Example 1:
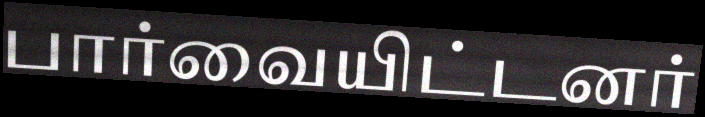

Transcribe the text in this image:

பார்வையிட்டனர்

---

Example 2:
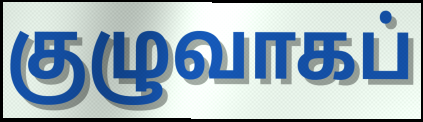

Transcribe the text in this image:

குழுவாகப்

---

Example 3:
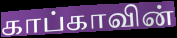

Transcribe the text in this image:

காப்காவின்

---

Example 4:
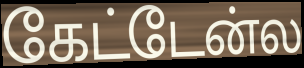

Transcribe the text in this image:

கேட்டேன்ல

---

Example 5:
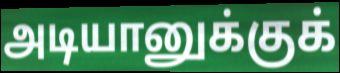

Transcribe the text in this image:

அடியானுக்குக்